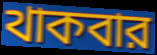
থাকবার